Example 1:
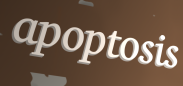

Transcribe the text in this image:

apoptosis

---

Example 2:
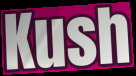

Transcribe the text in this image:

Kush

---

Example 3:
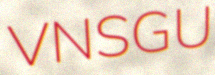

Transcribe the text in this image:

VNSGU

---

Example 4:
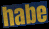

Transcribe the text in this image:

habe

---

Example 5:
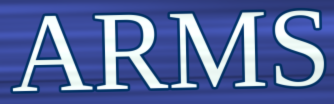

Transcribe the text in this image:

ARMS